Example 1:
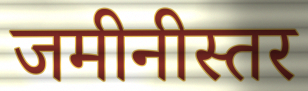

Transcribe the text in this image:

जमीनीस्तर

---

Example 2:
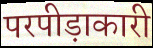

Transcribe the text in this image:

परपीड़ाकारी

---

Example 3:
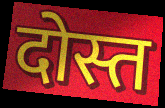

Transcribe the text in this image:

दोस्‍त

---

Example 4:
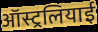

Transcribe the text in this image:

ऑस्ट्रलियाई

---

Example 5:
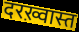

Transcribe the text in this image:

दरख़्वास्त